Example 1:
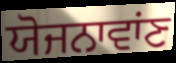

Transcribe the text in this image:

ਯੋਜਨਾਵਾਂਣ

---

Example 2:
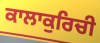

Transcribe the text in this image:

ਕਾਲਾਕੁਰਿਚੀ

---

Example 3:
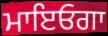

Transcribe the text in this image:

ਮਾਇਓਗਾ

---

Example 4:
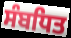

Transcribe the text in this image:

ਸੰਬਧਿਤ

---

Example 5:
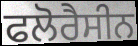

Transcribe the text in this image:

ਫਲੋਰੈਸੀਨ